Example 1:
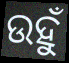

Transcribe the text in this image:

ଉହୁଁ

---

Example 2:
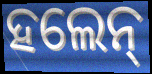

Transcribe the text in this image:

ହଲେନ୍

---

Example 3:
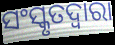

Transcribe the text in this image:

ସଂସ୍କୃତଦ୍ୱାରା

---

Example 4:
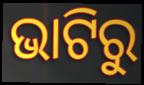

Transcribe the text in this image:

ଭାଟିରୁ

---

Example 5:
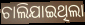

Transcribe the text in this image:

ଚାଲିଯାଇଥିଲା